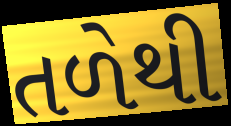
તળેથી